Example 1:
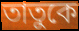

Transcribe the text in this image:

তাতুকে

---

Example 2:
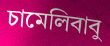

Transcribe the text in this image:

চামেলিবাবু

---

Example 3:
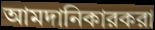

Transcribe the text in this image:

আমদানিকারকরা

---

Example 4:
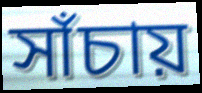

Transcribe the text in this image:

সাঁচায়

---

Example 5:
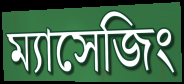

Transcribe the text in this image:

ম্যাসেজিং